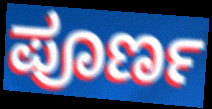
ಪೂರ್ಣ